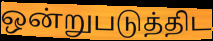
ஒன்றுபடுத்திட